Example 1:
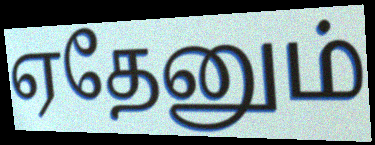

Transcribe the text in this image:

ஏதேனும்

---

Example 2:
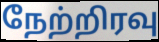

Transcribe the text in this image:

நேற்றிரவு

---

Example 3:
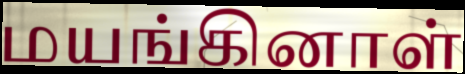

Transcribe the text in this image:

மயங்கினாள்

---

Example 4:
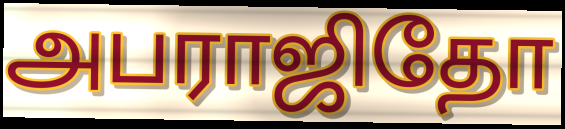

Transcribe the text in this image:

அபராஜிதோ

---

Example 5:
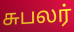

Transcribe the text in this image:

சுபலர்